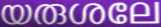
യരുശലേ